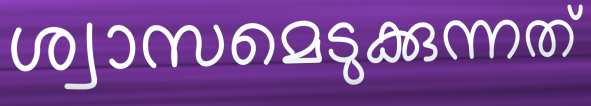
ശ്വാസമെടുക്കുന്നത്